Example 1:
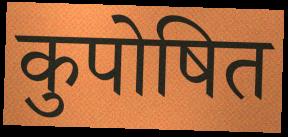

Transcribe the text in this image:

कुपोषित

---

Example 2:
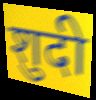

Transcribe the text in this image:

शुदी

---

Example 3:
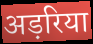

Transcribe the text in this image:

अड़रिया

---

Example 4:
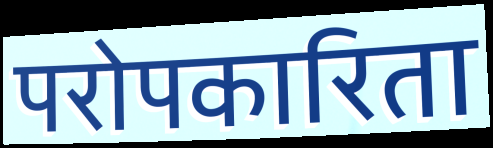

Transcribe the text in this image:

परोपकारिता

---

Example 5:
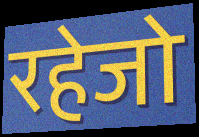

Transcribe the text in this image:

रहेजो